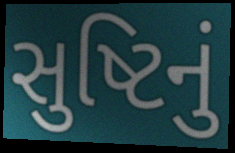
સુષ્ટિનું